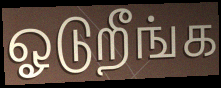
ஓடுறீங்க